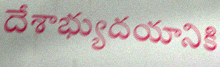
దేశాభ్యుదయానికి